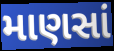
માણસાં